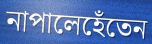
নাপালেহেঁতেন